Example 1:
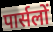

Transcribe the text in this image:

पार्सलों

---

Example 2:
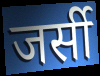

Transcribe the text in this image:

जर्सी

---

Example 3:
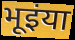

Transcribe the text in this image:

भूइंया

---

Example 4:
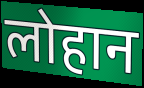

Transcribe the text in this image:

लोहान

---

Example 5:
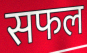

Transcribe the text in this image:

सफल